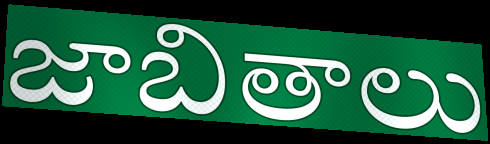
జాబితాలు